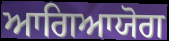
ਆਗਿਆਯੋਗ